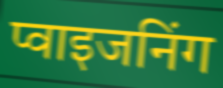
प्वाइजनिंग